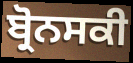
ਬ੍ਰੋਨਸਕੀ